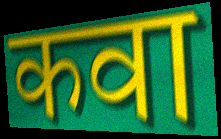
कवा